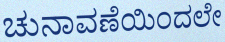
ಚುನಾವಣೆಯಿಂದಲೇ